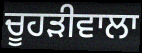
ਚੂਹੜੀਵਾਲਾ